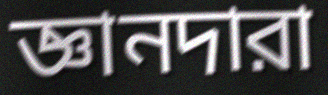
জ্ঞানদারা